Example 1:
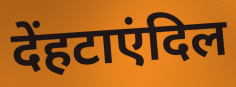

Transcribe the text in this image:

देंहटाएंदिल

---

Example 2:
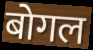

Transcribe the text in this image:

बोगल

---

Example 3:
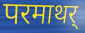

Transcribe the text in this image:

परमाथर्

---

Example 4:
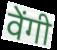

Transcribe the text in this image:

वेंगी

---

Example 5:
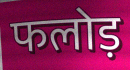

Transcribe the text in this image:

फलोड़